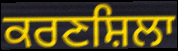
ਕਰਣਸ਼ਿਲਾ